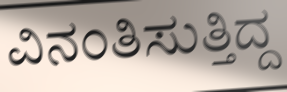
ವಿನಂತಿಸುತ್ತಿದ್ದ